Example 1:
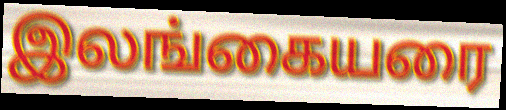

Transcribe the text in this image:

இலங்கையரை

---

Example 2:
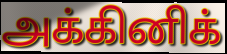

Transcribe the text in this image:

அக்கினிக்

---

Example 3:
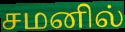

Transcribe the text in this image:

சமனில்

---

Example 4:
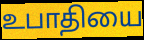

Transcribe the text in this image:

உபாதியை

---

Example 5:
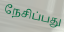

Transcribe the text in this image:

நேசிப்பது